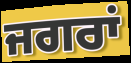
ਜਗਰਾਂ